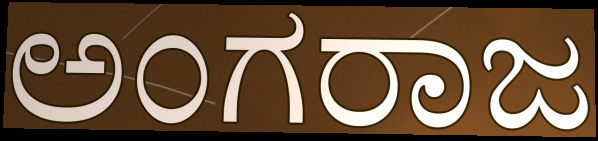
ಅಂಗರಾಜ